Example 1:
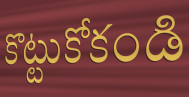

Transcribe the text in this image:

కొట్టుకోకండి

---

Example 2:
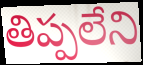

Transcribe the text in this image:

తిప్పలేని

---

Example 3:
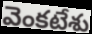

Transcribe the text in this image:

వెంకటేశు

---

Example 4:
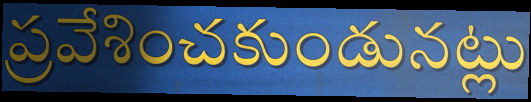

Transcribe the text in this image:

ప్రవేశించకుండునట్లు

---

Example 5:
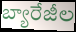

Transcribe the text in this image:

బ్యారేజీల